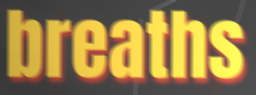
breaths